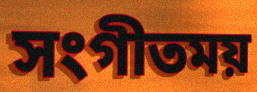
সংগীতময়